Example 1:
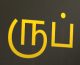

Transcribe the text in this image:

ருப்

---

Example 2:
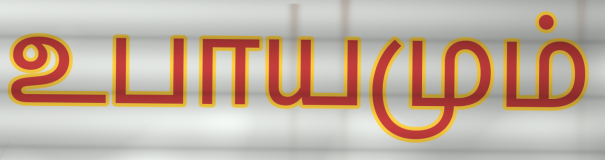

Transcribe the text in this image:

உபாயமும்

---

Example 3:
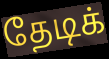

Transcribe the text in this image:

தேடிக்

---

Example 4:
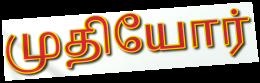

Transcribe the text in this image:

முதியோர்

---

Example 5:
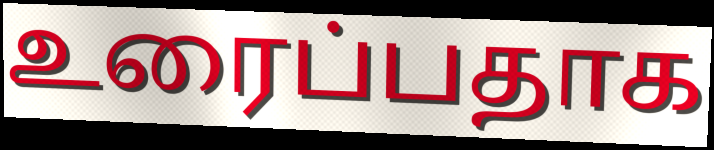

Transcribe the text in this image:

உரைப்பதாக